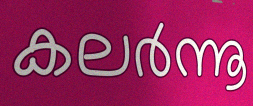
കലർന്നൂ